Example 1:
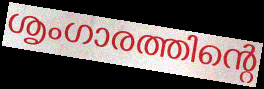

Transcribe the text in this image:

ശൃംഗാരത്തിന്റെ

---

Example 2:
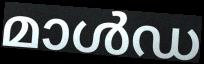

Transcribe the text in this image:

മാൾഡ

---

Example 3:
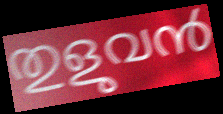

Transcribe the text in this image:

തുളുവൻ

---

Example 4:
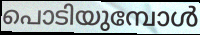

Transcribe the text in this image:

പൊടിയുമ്പോൾ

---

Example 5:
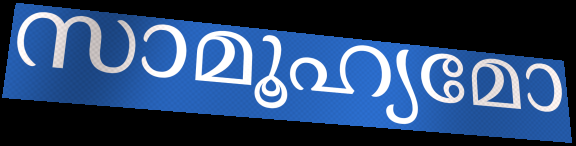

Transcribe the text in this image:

സാമൂഹ്യമോ